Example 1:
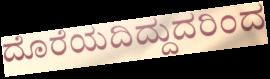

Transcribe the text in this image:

ದೊರೆಯದಿದ್ದುದರಿಂದ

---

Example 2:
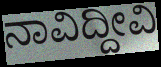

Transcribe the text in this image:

ನಾವಿದ್ದೀವಿ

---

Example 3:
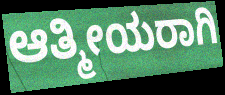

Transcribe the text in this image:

ಆತ್ಮೀಯರಾಗಿ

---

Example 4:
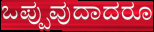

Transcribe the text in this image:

ಒಪ್ಪುವುದಾದರೂ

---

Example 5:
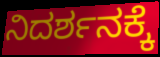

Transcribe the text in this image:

ನಿದರ್ಶನಕ್ಕೆ